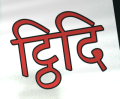
ट्ठिदि